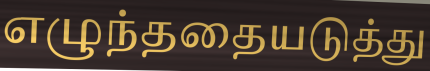
எழுந்ததையடுத்து